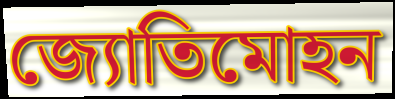
জ্যোতিমোহন